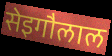
सेइगौलाल